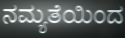
ನಮ್ಯತೆಯಿಂದ